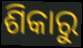
ଶିକାରୁ